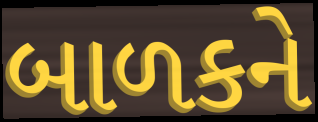
બાળકને